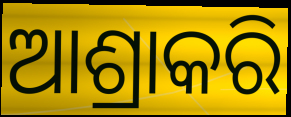
ଆଶ୍ରାକରି